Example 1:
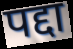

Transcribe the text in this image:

पद्दा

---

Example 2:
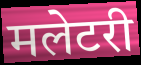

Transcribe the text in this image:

मलेटरी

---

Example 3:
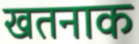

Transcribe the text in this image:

खतनाक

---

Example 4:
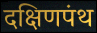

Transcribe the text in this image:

दक्षिणपंथ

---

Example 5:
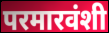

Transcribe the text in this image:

परमारवंशी